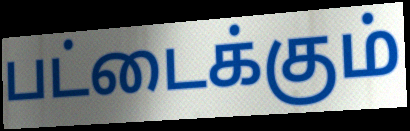
பட்டைக்கும்